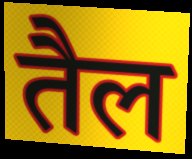
तैल